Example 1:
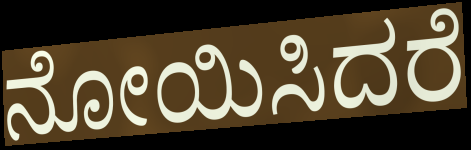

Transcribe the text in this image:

ನೋಯಿಸಿದರೆ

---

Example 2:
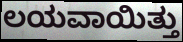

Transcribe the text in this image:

ಲಯವಾಯಿತ್ತು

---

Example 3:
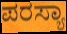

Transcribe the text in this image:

ಪರಸ್ಯಾ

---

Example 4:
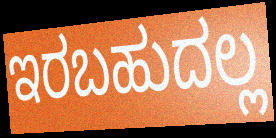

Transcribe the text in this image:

ಇರಬಹುದಲ್ಲ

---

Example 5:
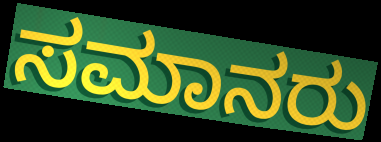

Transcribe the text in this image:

ಸಮಾನರು